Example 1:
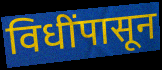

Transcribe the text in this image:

विधींपासून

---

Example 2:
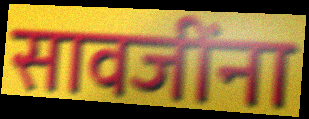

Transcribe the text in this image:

सावजींना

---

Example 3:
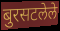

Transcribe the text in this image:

बुरसटलेले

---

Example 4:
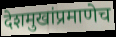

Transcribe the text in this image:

देशमुखांप्रमाणेच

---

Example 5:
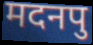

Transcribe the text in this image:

मदनपु